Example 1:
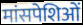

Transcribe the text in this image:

मांसपेशिओं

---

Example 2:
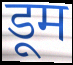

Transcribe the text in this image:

डूम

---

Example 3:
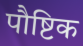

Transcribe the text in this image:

पौष्टिक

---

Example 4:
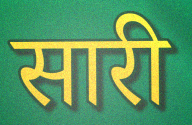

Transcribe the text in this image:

सारी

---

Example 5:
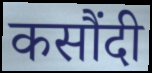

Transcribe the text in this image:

कसौंदी